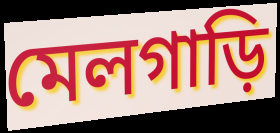
মেলগাড়ি